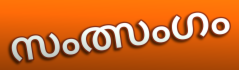
സംത്സംഗം